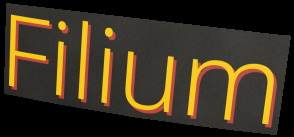
Filium